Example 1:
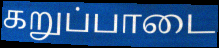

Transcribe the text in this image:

கறுப்பாடை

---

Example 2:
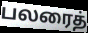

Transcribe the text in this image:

பலரைத்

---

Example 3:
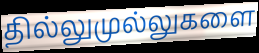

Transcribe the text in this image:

தில்லுமுல்லுகளை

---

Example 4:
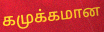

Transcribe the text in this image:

கமுக்கமான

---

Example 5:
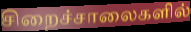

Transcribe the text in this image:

சிறைச்சாலைகளில்